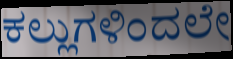
ಕಲ್ಲುಗಳಿಂದಲೇ